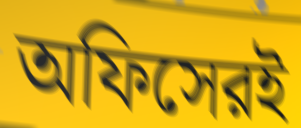
অফিসেরই